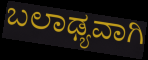
ಬಲಾಢ್ಯವಾಗಿ